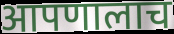
आपणालाच